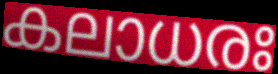
കലാധരഃ